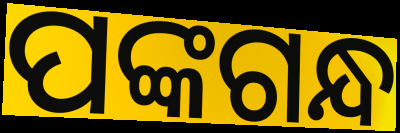
ପଙ୍କଗନ୍ଧ